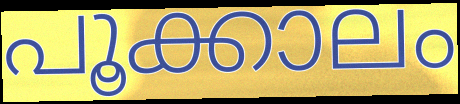
പൂക്കാലം